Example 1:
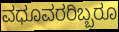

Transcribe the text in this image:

ವಧೂವರರಿಬ್ಬರೂ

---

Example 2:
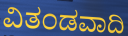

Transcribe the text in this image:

ವಿತಂಡವಾದಿ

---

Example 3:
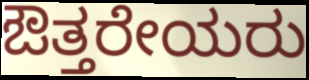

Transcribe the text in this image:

ಔತ್ತರೇಯರು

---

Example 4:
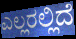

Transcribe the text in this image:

ಎಲ್ಲರಲ್ಲಿದೆ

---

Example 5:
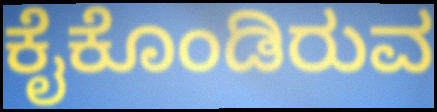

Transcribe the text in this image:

ಕೈಕೊಂಡಿರುವ